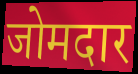
जोमदार